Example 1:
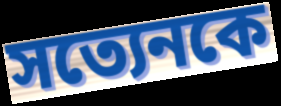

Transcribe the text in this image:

সত্যেনকে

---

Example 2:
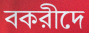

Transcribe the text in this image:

বকরীদে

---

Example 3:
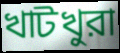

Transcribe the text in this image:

খাটখুরা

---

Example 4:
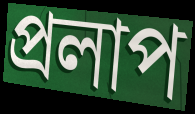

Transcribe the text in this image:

প্রলাপ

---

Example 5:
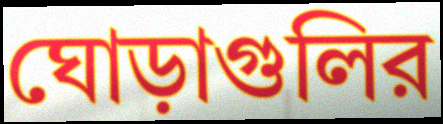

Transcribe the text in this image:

ঘোড়াগুলির